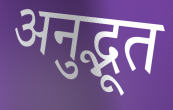
अनुद्भूत